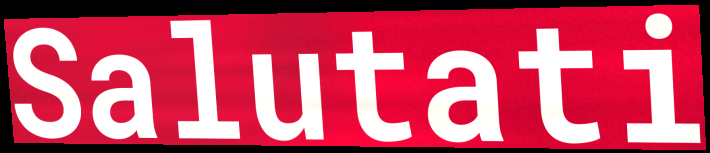
Salutati